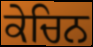
ਕੇਚਿਨ